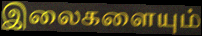
இலைகளையும்